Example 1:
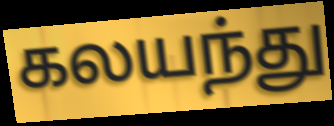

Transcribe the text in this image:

கலயந்து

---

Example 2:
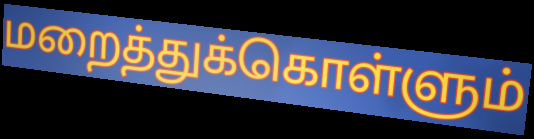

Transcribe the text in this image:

மறைத்துக்கொள்ளும்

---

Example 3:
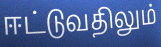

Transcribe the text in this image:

ஈட்டுவதிலும்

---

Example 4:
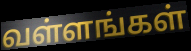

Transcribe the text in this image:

வள்ளங்கள்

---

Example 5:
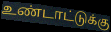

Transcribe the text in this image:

உண்டாட்டுக்கு